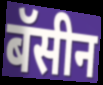
बॅसीन